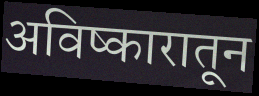
अविष्कारातून